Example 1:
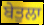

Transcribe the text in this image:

ਬੇਤੁਲਾ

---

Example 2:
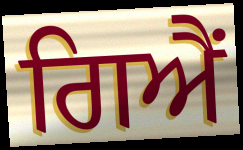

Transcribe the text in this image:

ਗਿਐਂ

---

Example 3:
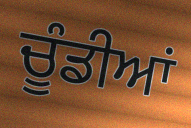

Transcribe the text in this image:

ਚੂੰਡੀਆਂ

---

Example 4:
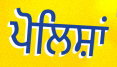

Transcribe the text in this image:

ਪੋਲਿਸ਼ਾਂ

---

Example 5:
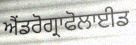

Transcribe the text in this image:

ਐਂਡਰੋਗ੍ਰਾਫੋਲਾਈਡ